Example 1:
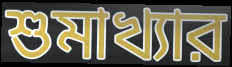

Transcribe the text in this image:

শুমাখ্যার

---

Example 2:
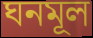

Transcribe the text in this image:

ঘনমূল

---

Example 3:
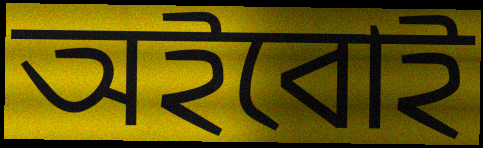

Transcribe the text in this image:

অইবোই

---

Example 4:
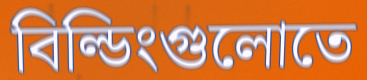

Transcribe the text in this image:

বিল্ডিংগুলোতে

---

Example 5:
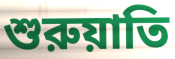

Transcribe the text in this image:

শুরুয়াতি